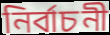
নির্বাচনী